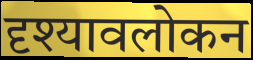
दृश्‍यावलोकन